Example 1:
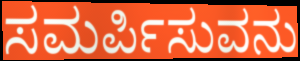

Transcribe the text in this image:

ಸಮರ್ಪಿಸುವನು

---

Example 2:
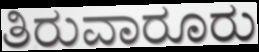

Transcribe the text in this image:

ತಿರುವಾರೂರು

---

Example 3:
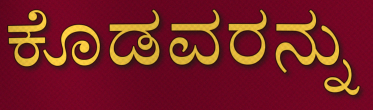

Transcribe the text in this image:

ಕೊಡವರನ್ನು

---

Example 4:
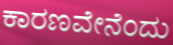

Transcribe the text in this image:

ಕಾರಣವೇನೆಂದು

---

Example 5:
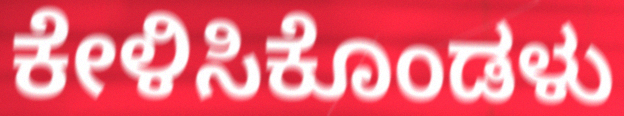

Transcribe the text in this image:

ಕೇಳಿಸಿಕೊಂಡಳು